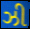
ઝી